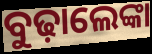
ବୁଢ଼ାଲେଙ୍କା